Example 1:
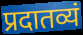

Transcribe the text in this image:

प्रदातव्यं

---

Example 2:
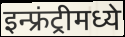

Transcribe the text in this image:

इन्फ्रंट्रीमध्ये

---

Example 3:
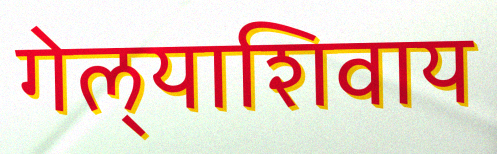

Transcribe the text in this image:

गेल्याशिवाय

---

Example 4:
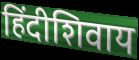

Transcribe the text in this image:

हिंदीशिवाय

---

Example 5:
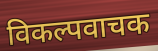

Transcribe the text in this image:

विकल्पवाचक